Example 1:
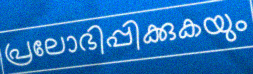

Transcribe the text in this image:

പ്രലോഭിപ്പിക്കുകയും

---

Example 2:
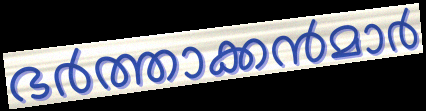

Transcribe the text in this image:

ഭർത്താക്കൻമാർ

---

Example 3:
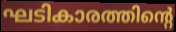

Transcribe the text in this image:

ഘടികാരത്തിന്റെ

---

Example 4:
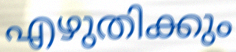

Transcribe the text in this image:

എഴുതിക്കും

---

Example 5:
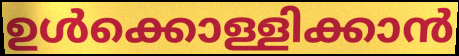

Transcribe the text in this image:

ഉൾക്കൊള്ളിക്കാൻ